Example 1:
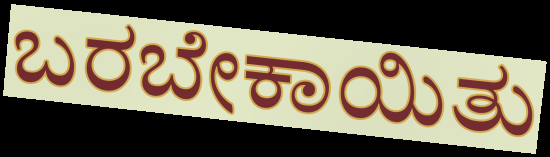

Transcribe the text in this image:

ಬರಬೇಕಾಯಿತು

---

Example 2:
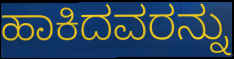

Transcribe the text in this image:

ಹಾಕಿದವರನ್ನು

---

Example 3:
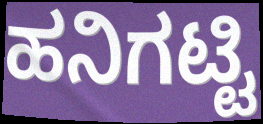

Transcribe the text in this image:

ಹನಿಗಟ್ಟಿ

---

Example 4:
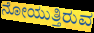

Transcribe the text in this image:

ನೋಯುತ್ತಿರುವ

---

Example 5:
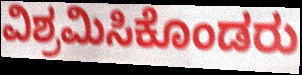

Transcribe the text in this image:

ವಿಶ್ರಮಿಸಿಕೊಂಡರು